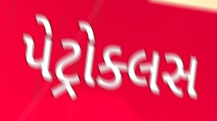
પેટ્રોક્લસ